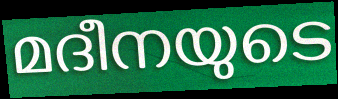
മദീനയുടെ